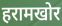
हरामखोर